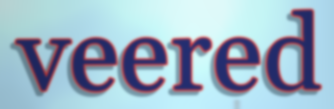
veered